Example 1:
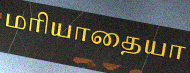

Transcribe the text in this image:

மரியாதையா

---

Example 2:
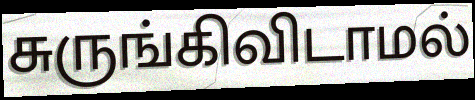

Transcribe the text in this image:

சுருங்கிவிடாமல்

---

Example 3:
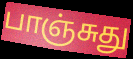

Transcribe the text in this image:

பாஞ்சுது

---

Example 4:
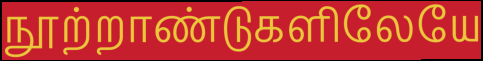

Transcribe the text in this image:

நூற்றாண்டுகளிலேயே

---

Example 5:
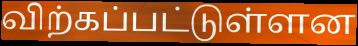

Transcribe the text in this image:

விற்கப்பட்டுள்ளன